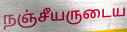
நஞ்சீயருடைய